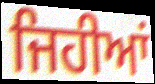
ਜਿਹੀਆਂ